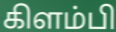
கிளம்பி